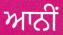
ਆਨੀਂ